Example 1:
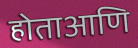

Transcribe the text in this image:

होताआणि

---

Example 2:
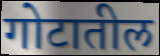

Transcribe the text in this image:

गोटातील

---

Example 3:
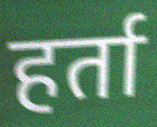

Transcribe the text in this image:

हर्ता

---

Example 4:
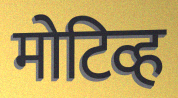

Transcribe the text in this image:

मोटिव्ह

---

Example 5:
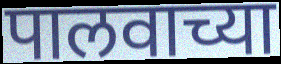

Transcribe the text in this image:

पालवाच्या